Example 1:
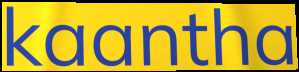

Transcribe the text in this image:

kaantha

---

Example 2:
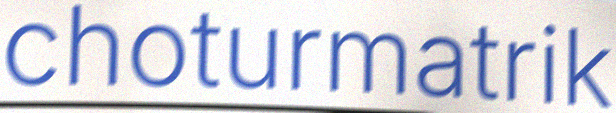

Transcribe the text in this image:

choturmatrik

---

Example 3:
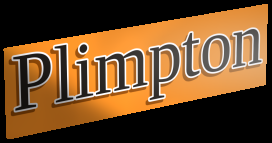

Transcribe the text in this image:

Plimpton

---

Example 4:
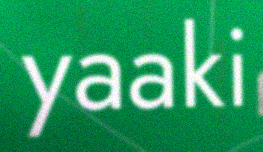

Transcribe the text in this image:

yaaki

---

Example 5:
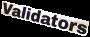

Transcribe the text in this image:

Validators